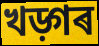
খড়্গৰ